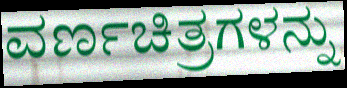
ವರ್ಣಚಿತ್ರಗಳನ್ನು